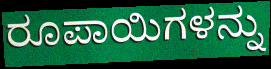
ರೂಪಾಯಿಗಳನ್ನು